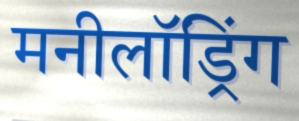
मनीलॉंड्रिंग